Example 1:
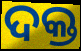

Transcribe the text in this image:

ଦକ୍ତ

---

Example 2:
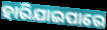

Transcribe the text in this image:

ହାରିଯାଇପାରେ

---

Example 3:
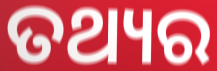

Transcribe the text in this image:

ତଥ୍ୟର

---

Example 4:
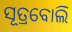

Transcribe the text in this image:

ସୂତ୍ରବୋଲି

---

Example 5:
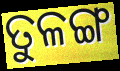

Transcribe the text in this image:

ତୁଳଙ୍ଗ